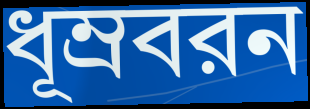
ধূম্রবরন